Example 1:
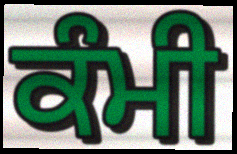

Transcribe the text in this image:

ਕੰਮੀ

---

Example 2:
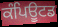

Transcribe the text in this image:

ਕੰਪਿਊਟਡ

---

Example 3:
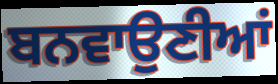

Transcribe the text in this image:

ਬਨਵਾਉਣੀਆਂ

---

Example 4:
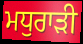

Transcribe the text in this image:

ਮਧੁਰਾੜੀ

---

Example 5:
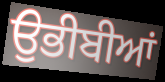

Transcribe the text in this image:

ਉਭੀਬੀਆਂ